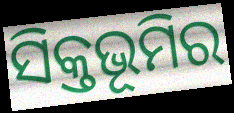
ସିକ୍ତଭୂମିର